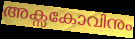
അക്സകോവിനും